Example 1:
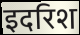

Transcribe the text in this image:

इदरिश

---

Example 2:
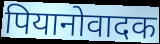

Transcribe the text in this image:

पियानोवादक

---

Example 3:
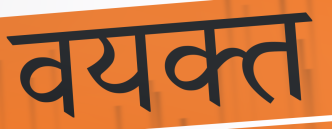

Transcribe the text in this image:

वयक्त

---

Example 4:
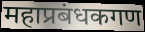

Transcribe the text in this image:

महाप्रबंधकगण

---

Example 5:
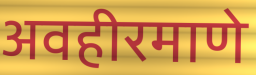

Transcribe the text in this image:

अवहीरमाणे